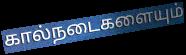
கால்நடைகளையும்